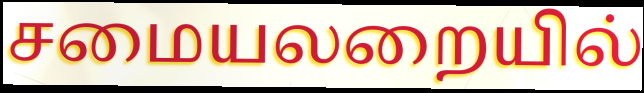
சமையலறையில்